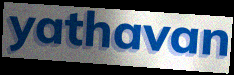
yathavan